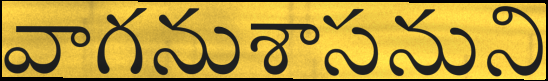
వాగనుశాసనుని